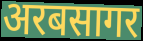
अरबसागर